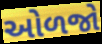
ઓળજો